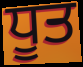
ਧੂਤ